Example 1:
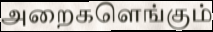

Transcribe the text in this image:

அறைகளெங்கும்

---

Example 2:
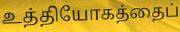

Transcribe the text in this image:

உத்தியோகத்தைப்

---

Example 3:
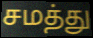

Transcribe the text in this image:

சமத்து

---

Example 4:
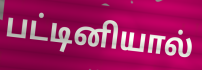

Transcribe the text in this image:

பட்டினியால்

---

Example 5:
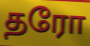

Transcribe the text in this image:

தரோ